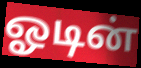
ஓடின்